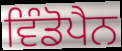
ਵਿੰਡੋਪੈਨ